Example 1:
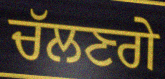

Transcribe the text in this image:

ਚੱਲਣਗੇ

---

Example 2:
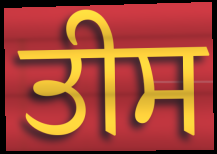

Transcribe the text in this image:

ਤੀਸ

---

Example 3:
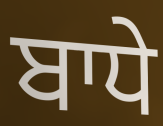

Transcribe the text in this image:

ਬਾਧੇ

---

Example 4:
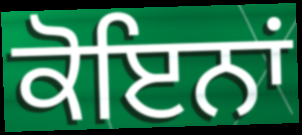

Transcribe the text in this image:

ਕੋਇਨਾਂ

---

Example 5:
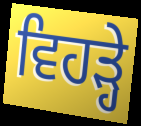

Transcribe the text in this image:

ਵਿਹੜ੍ਹੇ